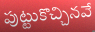
పుట్టుకొచ్చినవే